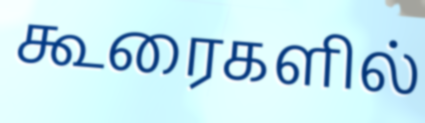
கூரைகளில்